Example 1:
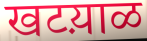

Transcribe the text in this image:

खटय़ाळ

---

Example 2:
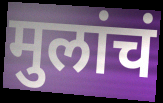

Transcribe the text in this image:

मुलांचं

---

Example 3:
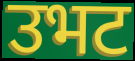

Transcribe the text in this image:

उभट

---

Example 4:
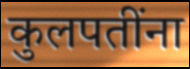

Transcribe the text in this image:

कुलपतींना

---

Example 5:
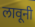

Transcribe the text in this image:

लावूनी